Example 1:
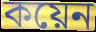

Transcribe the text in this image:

কয়েন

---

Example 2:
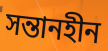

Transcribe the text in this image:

সন্তানহীন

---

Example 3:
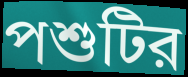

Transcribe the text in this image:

পশুটির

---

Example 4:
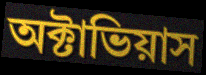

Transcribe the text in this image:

অক্টাভিয়াস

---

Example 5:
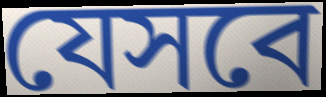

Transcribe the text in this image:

যেসবে